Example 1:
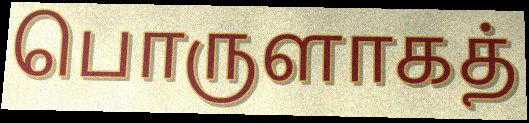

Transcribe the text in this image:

பொருளாகத்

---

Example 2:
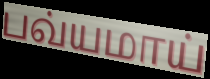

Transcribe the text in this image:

பவ்யமாய்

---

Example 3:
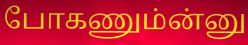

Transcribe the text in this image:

போகணும்ன்னு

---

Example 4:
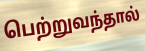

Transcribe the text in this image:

பெற்றுவந்தால்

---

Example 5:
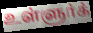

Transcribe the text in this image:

உள்ளுர்க்